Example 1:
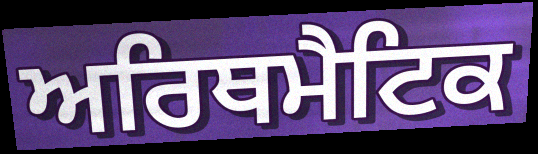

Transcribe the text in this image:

ਅਰਿਥਮੈਟਿਕ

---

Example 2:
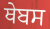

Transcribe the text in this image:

ਥੇਬਸ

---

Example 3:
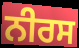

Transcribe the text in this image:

ਨੀਰਸ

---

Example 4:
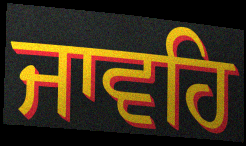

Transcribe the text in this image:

ਜਾਵਹਿ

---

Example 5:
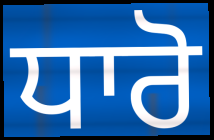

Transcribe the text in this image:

ਧਾਰੋ